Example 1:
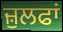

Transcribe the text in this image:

ਜ਼ੁਲਫਾਂ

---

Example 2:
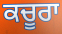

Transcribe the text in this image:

ਕਚੂਰਾ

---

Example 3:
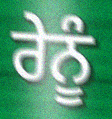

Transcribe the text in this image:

ਰੇਨੂੰ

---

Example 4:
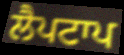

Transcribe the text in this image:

ਲੈਪਟਾਪ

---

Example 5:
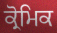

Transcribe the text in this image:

ਕ੍ਰੋਮਿਕ